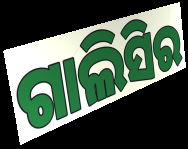
ଗାଲିସିର